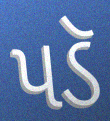
પડૅ